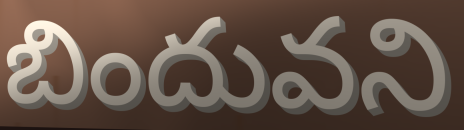
బిందువని